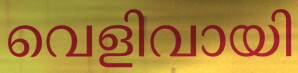
വെളിവായി